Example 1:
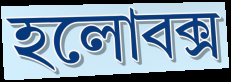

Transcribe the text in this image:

হলোবক্স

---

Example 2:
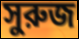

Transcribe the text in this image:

সুরুজ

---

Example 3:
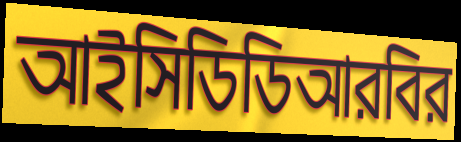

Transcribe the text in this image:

আইসিডিডিআরবির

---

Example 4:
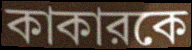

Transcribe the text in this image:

কাকারকে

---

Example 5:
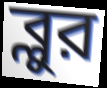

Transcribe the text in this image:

ব্লুর